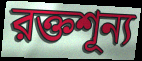
রক্তশূন্য